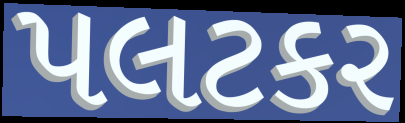
પલટકર